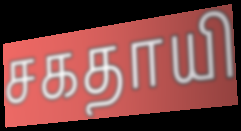
சகதாயி